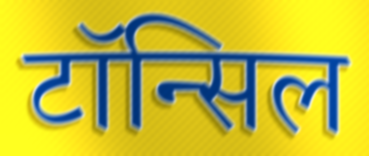
टॉन्सिल